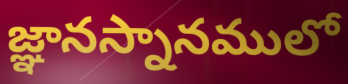
జ్ఞానస్నానములో